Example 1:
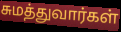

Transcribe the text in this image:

சுமத்துவார்கள்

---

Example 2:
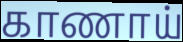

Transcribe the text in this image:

காணாய்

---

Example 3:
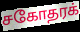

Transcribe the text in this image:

சகோதரக்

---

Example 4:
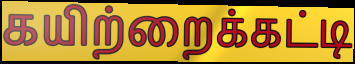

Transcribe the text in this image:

கயிற்றைக்கட்டி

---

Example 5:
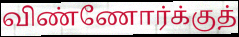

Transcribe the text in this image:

விண்ணோர்க்குத்